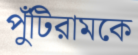
পুঁটিরামকে